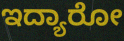
ಇದ್ಯಾರೋ